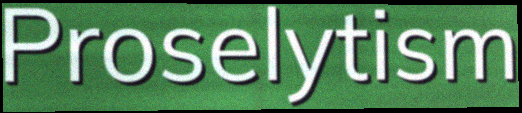
Proselytism